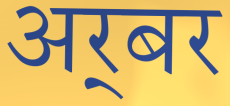
अर्बर